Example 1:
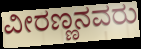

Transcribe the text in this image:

ವೀರಣ್ಣನವರು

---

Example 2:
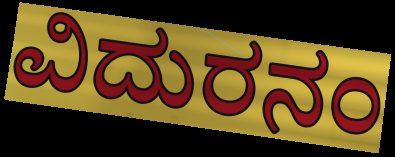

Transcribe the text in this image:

ವಿದುರನಂ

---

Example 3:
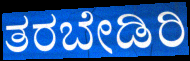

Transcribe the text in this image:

ತರಬೇಡಿರಿ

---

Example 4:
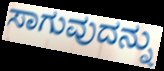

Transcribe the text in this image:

ಸಾಗುವುದನ್ನು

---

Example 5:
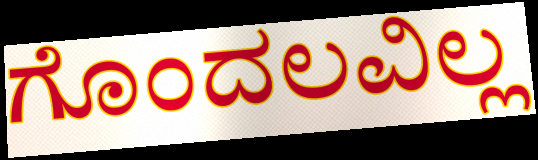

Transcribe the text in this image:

ಗೊಂದಲವಿಲ್ಲ